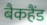
बैकहैंड